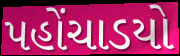
પહોંચાડયો